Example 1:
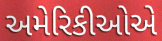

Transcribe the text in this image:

અમેરિકીઓએ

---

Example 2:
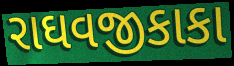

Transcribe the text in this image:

રાઘવજીકાકા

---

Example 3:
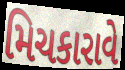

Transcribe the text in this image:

મિચકારાવે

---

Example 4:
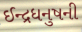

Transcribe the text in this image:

ઈન્દ્રધનુષની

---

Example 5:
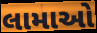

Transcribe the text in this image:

લામાઓ